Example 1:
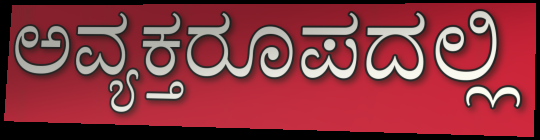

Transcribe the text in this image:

ಅವ್ಯಕ್ತರೂಪದಲ್ಲಿ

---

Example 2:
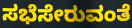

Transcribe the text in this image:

ಸಭೆಸೇರುವಂತೆ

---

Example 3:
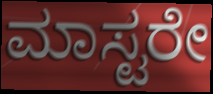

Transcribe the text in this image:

ಮಾಸ್ಟರೇ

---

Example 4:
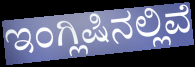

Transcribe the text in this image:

ಇಂಗ್ಲಿಷಿನಲ್ಲಿವೆ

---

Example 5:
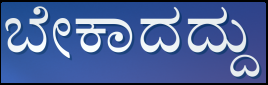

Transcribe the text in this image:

ಬೇಕಾದದ್ದು